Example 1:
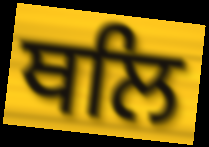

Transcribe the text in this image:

ਥਲਿ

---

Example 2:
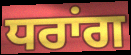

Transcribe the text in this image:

ਧਰਾਂਗ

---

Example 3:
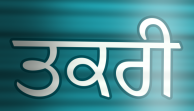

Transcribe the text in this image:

ਤਕਰੀ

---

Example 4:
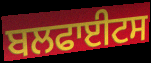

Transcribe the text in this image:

ਬਲਫਾਈਟਸ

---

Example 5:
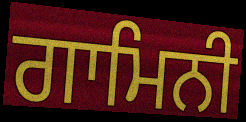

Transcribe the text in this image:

ਗਾਮਿਨੀ